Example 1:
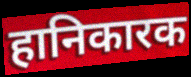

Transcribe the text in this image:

हानिकारक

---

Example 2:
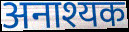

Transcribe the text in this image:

अनाश्यक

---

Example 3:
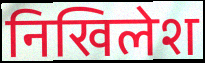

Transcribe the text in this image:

निखिलेश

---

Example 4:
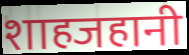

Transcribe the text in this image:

शाहजहानी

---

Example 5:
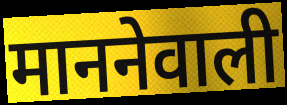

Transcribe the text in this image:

माननेवाली